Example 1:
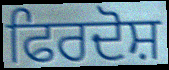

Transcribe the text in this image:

ਫਿਰਦੋਸ਼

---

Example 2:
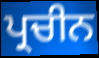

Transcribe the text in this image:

ਪ੍ਰਚੀਨ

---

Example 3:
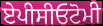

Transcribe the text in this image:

ਏਪੀਸੀਓਟੋਮੀ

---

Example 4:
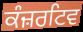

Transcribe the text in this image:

ਕੰਜ਼ਰਟਿਵ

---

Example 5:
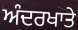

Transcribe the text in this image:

ਅੰਦਰਖਾਤੇ